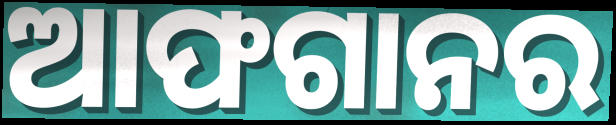
ଆଫଗାନର